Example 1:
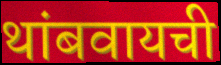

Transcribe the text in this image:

थांबवायची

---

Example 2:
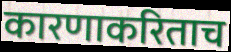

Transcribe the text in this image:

कारणाकरिताच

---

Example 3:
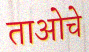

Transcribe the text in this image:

ताओचे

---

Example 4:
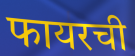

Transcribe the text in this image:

फायरची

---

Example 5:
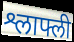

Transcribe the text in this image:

श्लाफ्ली